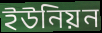
ইউনিয়ন